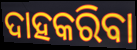
ଦାହକରିବା